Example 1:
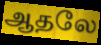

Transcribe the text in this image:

ஆதலே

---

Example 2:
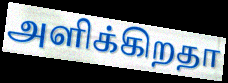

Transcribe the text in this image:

அளிக்கிறதா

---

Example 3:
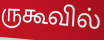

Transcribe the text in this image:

ருகூவில்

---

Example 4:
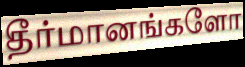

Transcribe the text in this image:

தீர்மானங்களோ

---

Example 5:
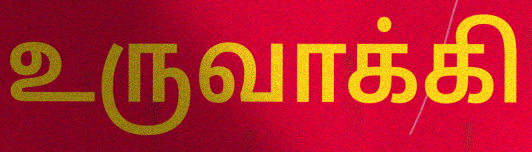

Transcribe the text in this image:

உருவாக்கி